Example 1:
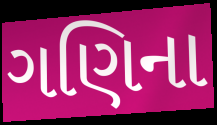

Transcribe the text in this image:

ગણિના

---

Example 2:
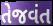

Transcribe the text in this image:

તેજવંત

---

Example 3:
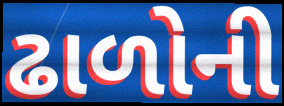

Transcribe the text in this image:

ઢાળોની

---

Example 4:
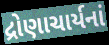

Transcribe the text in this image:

દ્રોણાચાર્યનાં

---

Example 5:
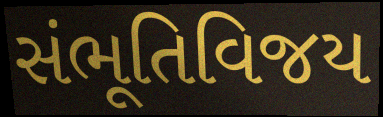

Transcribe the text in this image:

સંભૂતિવિજય